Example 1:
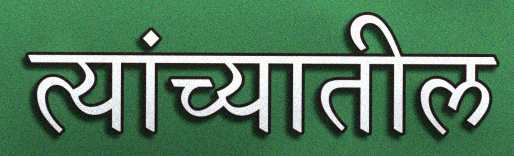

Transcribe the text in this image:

त्यांच्यातील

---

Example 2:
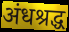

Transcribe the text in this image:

अंधश्रद्ध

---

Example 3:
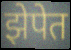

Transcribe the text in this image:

झेपेत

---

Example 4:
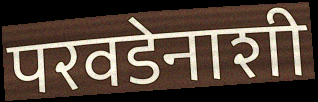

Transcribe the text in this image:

परवडेनाशी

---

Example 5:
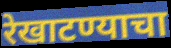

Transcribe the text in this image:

रेखाटण्याचा